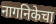
नागनिकेचा